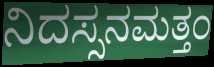
ನಿದಸ್ಸನಮತ್ತಂ